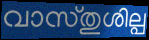
വാസ്തുശില്പ